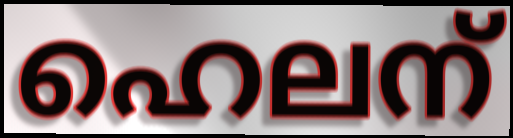
ഹെലന്